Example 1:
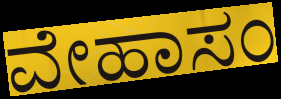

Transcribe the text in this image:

ವೇಹಾಸಂ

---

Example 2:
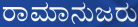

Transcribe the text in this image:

ರಾಮಾನುಜರು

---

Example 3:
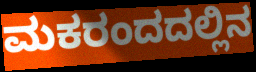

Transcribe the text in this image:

ಮಕರಂದದಲ್ಲಿನ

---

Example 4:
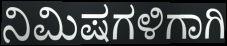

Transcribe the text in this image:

ನಿಮಿಷಗಳಿಗಾಗಿ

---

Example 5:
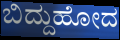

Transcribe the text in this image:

ಬಿದ್ದುಹೋದ